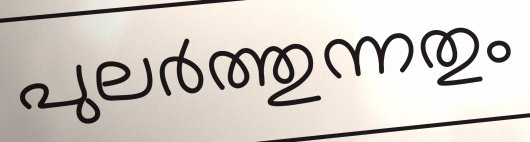
പുലർത്തുന്നതും